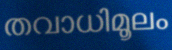
തവാധിമൂലം